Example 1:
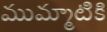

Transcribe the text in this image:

ముమ్మాటికి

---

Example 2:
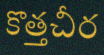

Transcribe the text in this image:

కొత్తచీర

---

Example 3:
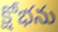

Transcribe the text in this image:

క్షోభను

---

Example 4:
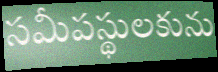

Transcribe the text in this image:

సమీపస్థులకును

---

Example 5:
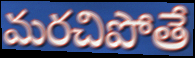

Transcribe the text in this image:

మరచిపోతే